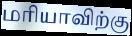
மரியாவிற்கு